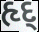
હૃદ્